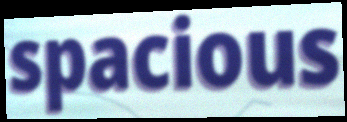
spacious